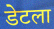
डेटला